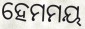
ହେମମୟ